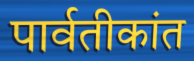
पार्वतीकांत